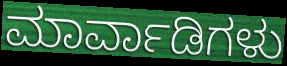
ಮಾರ್ವಾಡಿಗಳು